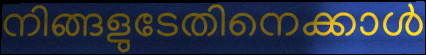
നിങ്ങളുടേതിനെക്കാൾ